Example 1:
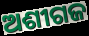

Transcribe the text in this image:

ଅଶୀଗଜ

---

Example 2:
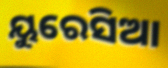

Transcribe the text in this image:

ୟୁରେସିଆ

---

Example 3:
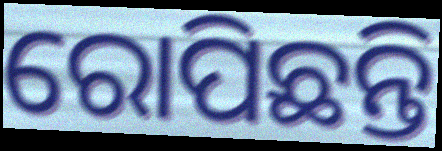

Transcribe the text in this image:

ରୋପିଛନ୍ତି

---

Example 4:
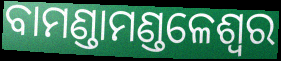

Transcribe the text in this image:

ବାମଣ୍ଡାମଣ୍ଡଳେଶ୍ୱର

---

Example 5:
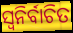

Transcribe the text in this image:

ସ୍ୱନିର୍ବାଚିତ